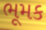
ભૂમક